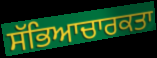
ਸੱਭਿਆਚਾਰਕਤਾ